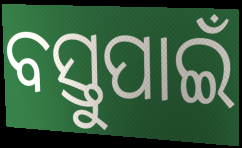
ବସ୍ତୁପାଇଁ